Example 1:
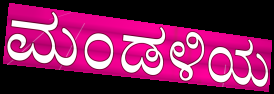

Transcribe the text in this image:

ಮಂಡಳಿಯ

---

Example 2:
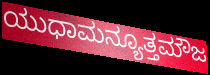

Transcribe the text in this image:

ಯುಧಾಮನ್ಯೂತ್ತಮೌಜ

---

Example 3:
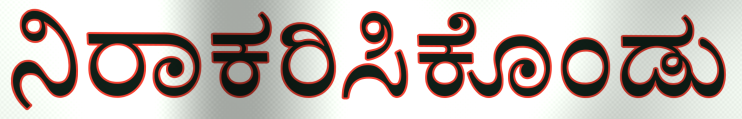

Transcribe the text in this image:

ನಿರಾಕರಿಸಿಕೊಂಡು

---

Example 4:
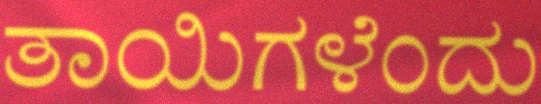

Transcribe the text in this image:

ತಾಯಿಗಳೆಂದು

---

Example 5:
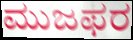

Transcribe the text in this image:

ಮುಜಫರ